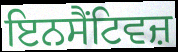
ਇਨਸੈਂਟਿਵਜ਼